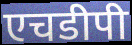
एचडीपी